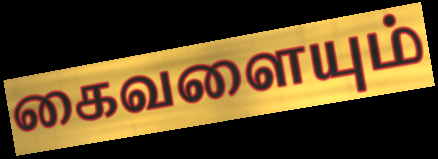
கைவளையும்